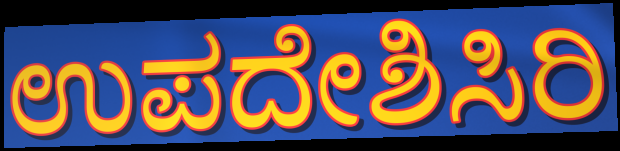
ಉಪದೇಶಿಸಿರಿ